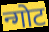
न्गोट